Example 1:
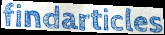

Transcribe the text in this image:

findarticles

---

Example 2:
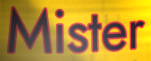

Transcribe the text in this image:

Mister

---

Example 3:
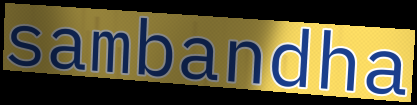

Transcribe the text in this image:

sambandha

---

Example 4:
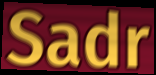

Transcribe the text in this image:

Sadr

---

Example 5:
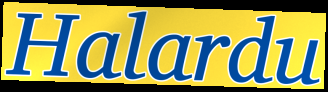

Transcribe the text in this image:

Halardu